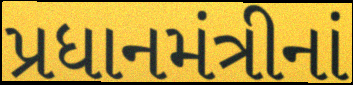
પ્રધાનમંત્રીનાં